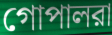
গোপালরা